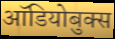
ऑडियोबुक्स